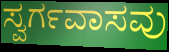
ಸ್ವರ್ಗವಾಸವು